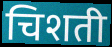
चिशती